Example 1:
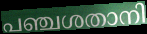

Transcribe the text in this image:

പഞ്ചശതാനി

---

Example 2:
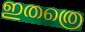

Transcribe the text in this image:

ഇതത്രെ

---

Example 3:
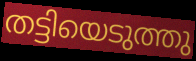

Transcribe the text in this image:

തട്ടിയെടുത്തു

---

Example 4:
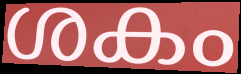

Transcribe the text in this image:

ശകം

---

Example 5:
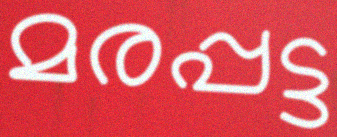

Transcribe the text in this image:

മരപ്പട്ട